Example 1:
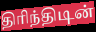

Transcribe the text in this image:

திரிந்திடின்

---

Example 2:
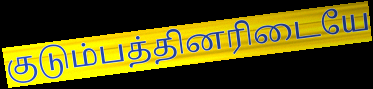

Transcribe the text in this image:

குடும்பத்தினரிடையே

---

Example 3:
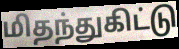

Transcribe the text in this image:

மிதந்துகிட்டு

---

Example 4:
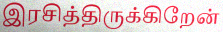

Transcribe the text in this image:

இரசித்திருக்கிறேன்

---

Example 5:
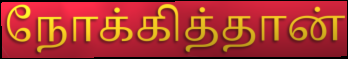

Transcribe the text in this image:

நோக்கித்தான்